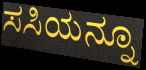
ಸಸಿಯನ್ನೂ